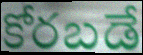
కోరబడే